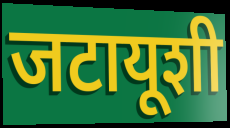
जटायूशी